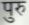
पुरु